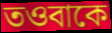
তওবাকে